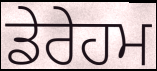
ਡੇਰੇਹਮ